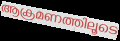
ആക്രമണത്തിലൂടെ